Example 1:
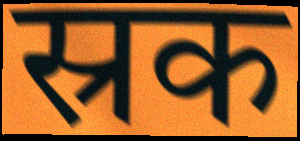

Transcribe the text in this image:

स्रक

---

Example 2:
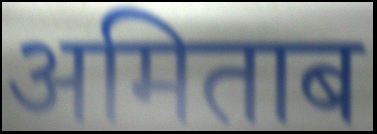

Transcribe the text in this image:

अमिताब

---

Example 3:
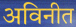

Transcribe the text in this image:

अविनीत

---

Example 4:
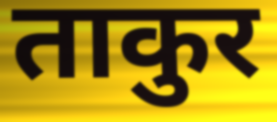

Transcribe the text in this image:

ताकुर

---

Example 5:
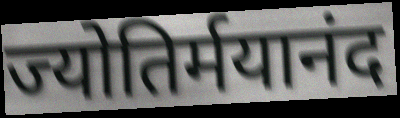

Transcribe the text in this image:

ज्योतिर्मयानंद